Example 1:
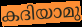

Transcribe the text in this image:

കദിയാമു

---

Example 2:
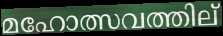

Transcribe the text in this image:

മഹോത്സവത്തില്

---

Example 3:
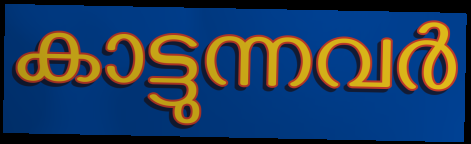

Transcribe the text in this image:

കാട്ടുന്നവർ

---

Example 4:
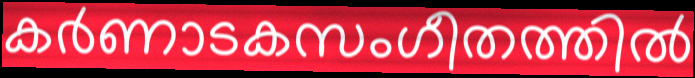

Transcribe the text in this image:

കർണാടകസംഗീതത്തിൽ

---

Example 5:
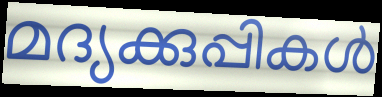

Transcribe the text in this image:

മദ്യക്കുപ്പികൾ